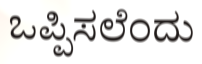
ಒಪ್ಪಿಸಲೆಂದು